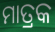
ମାତ୍ରକ